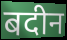
बदीन